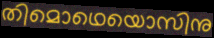
തിമൊഥെയൊസിനു